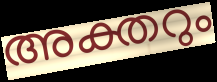
അക്തറും